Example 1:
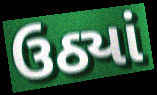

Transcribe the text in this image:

ઉઠ્યાં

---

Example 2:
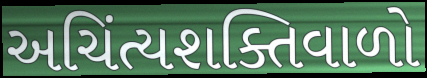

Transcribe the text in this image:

અચિંત્યશક્તિવાળો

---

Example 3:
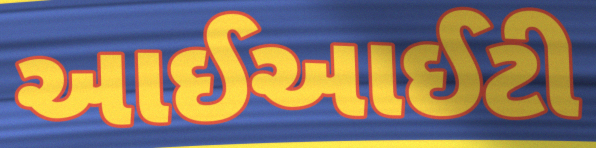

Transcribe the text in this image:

આઈઆઈટી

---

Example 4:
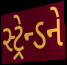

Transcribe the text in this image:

સ્ટ્રેન્ડને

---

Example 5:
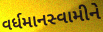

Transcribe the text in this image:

વર્ધમાનસ્વામીને